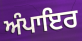
ਅੰਪਾਇਰ